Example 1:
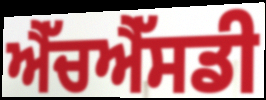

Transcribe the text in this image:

ਐੱਚਐੱਸਡੀ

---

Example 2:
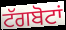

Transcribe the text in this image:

ਟੱਗਬੋਟਾਂ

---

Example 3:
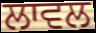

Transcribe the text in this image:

ਲਾਵਲ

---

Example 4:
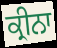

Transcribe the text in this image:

ਕ੍ਰੀਨਾ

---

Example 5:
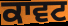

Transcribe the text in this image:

ਕਾਵਟ